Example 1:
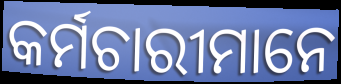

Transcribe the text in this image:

କର୍ମଚାରୀମାନେ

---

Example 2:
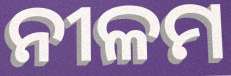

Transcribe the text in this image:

ନୀଳମ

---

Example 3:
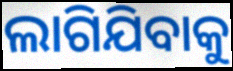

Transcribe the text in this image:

ଲାଗିଯିବାକୁ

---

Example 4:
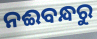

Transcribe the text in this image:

ନଈବନ୍ଧରୁ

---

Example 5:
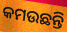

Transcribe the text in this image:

କମଉଛନ୍ତି